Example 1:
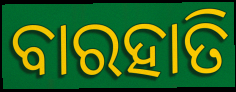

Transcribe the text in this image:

ବାରହାତି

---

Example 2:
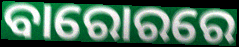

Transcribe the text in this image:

ବାରୋରରେ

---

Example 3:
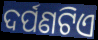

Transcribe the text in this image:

ଦର୍ପଣଟିଏ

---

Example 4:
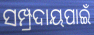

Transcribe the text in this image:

ସମ୍ପ୍ରଦାୟପାଇଁ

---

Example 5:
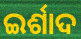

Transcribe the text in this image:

ଇର୍ଶାଦ